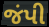
જંપી